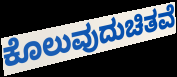
ಕೊಲುವುದುಚಿತವೆ